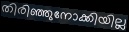
തിരിഞ്ഞുനോക്കിയില്ല